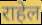
राहेल